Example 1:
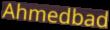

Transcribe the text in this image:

Ahmedbad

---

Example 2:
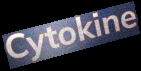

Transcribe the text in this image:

Cytokine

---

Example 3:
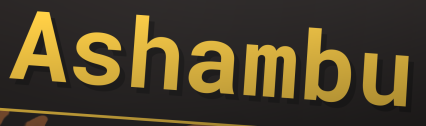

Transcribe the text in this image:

Ashambu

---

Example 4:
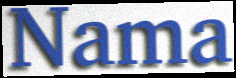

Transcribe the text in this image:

Nama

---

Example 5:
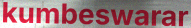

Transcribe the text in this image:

kumbeswarar